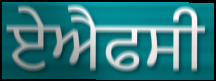
ਏਐਫਸੀ